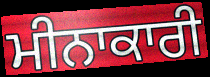
ਮੀਨਾਕਾਰੀ